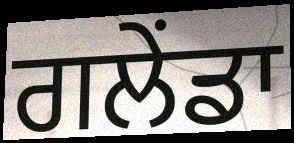
ਗਲੇਂਡਾ